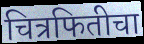
चित्रफितीचा